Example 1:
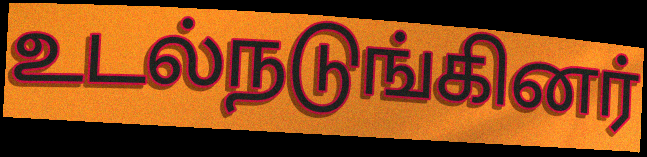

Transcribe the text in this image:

உடல்நடுங்கினர்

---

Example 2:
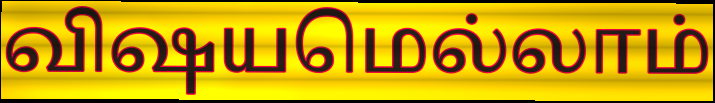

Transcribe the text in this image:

விஷயமெல்லாம்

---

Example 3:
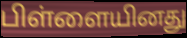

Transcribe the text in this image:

பிள்ளையினது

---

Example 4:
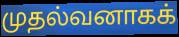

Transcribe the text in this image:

முதல்வனாகக்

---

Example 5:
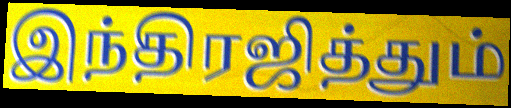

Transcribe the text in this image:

இந்திரஜித்தும்